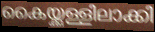
കൈയ്ക്കുള്ളിലാക്കി